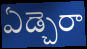
ఏడ్చెరా